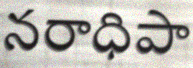
నరాధిపా